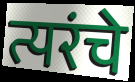
त्यरंचे